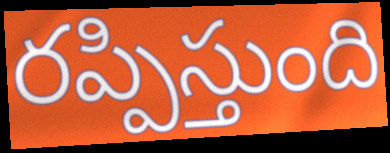
రప్పిస్తుంది